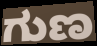
ಗುಣ